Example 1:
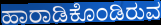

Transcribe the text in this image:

ಹಾರಾಡಿಕೊಂಡಿರುವ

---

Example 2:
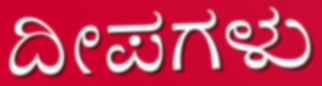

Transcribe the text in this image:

ದೀಪಗಳು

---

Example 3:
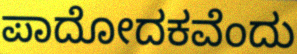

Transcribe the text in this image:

ಪಾದೋದಕವೆಂದು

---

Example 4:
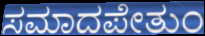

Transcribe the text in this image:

ಸಮಾದಪೇತುಂ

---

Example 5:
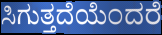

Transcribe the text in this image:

ಸಿಗುತ್ತದೆಯೆಂದರೆ